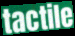
tactile